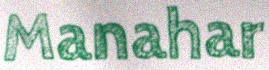
Manahar